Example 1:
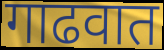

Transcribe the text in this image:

गाढवात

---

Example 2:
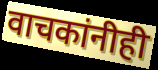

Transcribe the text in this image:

वाचकांनीही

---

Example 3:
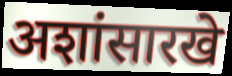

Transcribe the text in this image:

अशांसारखे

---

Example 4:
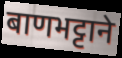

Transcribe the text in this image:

बाणभट्टाने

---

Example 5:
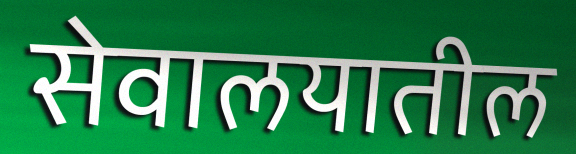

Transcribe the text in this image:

सेवालयातील